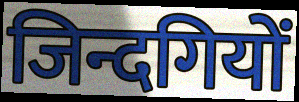
जिन्दगियों